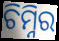
ଚିମ୍ନିର